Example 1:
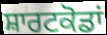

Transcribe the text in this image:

ਸ਼ਾਰਟਕੋਡਾਂ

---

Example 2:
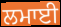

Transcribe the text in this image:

ਲਮਾਈ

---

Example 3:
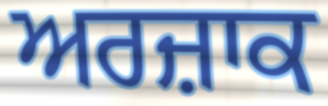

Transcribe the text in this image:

ਅਰਜ਼ਾਕ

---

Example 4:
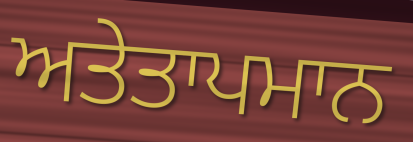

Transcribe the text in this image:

ਅਤੇਤਾਪਮਾਨ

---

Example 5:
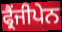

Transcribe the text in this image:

ਫ੍ਰੈਂਜੀਪੇਨ